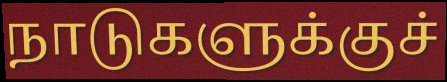
நாடுகளுக்குச்